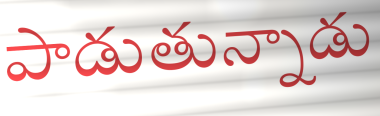
పాడుతున్నాడు